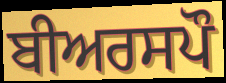
ਬੀਅਰਸਪੌ